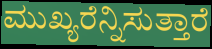
ಮುಖ್ಯರೆನ್ನಿಸುತ್ತಾರೆ